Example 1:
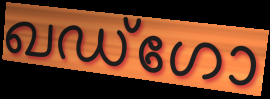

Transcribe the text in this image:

ഖഡ്ഗോ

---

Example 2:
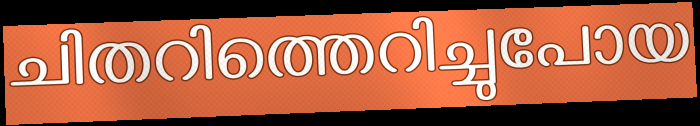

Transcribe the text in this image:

ചിതറിത്തെറിച്ചുപോയ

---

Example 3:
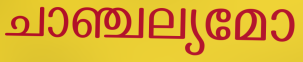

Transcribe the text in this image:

ചാഞ്ചല്യമോ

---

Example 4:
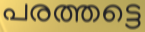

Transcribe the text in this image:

പരത്തട്ടെ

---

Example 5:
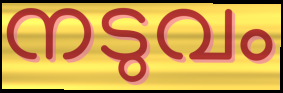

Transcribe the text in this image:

നടുവം